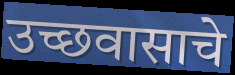
उच्छवासाचे